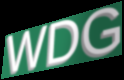
WDG